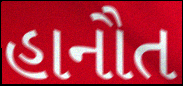
હાનૌત